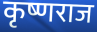
कृष्णराज